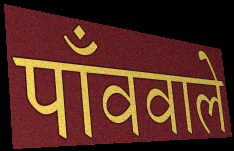
पाँववाले